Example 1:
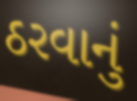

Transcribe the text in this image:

ઠરવાનું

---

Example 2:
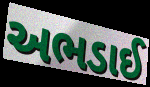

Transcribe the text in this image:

અભડાઈ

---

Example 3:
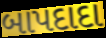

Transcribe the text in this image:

બાપદાદા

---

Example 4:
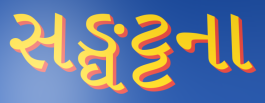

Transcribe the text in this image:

સઙ્ઘટ્ટના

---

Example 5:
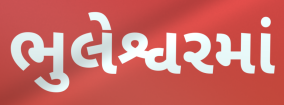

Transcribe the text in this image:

ભુલેશ્વરમાં